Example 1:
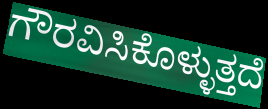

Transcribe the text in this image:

ಗೌರವಿಸಿಕೊಳ್ಳುತ್ತದೆ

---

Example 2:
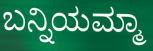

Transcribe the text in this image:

ಬನ್ನಿಯಮ್ಮಾ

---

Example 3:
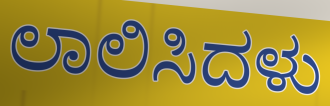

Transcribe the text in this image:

ಲಾಲಿಸಿದಳು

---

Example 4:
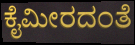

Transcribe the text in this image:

ಕೈಮೀರದಂತೆ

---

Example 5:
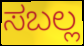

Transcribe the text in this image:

ಸಬಲ್ಲ